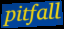
pitfall